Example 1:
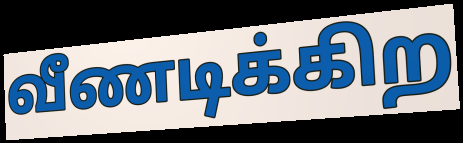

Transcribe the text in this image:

வீணடிக்கிற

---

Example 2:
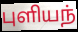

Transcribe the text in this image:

புளியந்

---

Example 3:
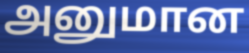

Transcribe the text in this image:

அனுமான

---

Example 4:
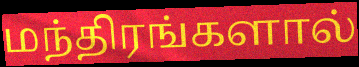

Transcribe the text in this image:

மந்திரங்களால்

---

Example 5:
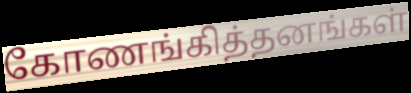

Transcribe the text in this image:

கோணங்கித்தனங்கள்